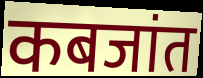
कबजांत